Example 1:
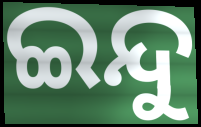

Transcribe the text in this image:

ଇନ୍ଦୁ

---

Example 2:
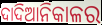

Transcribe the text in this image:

ଦାଦିଆନିକାଳର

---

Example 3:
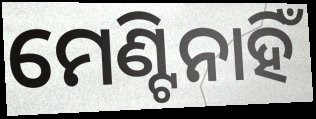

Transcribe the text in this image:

ମେଣ୍ଟିନାହିଁ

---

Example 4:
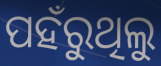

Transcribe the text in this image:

ପହଁରୁଥିଲୁ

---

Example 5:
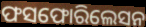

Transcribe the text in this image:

ଫସଫୋରିଲେସନ